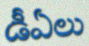
డీఏలు